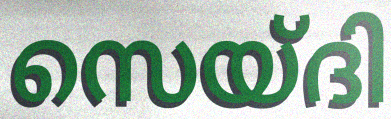
സെയ്ദി